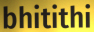
bhitithi